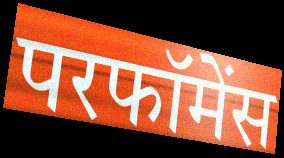
परफॉमेंस